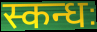
स्कन्धः